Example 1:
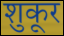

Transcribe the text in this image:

शुकूर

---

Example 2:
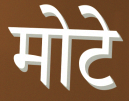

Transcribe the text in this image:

मोटे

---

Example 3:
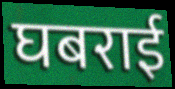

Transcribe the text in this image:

घबराई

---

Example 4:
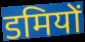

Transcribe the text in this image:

डमियों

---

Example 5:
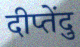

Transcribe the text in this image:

दीप्तेंदु